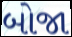
બોજા